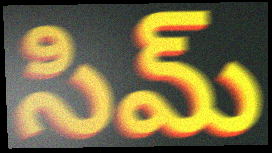
సిమ్